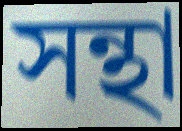
সন্থা